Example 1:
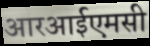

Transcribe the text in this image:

आरआईएमसी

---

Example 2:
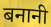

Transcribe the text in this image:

बनानी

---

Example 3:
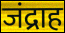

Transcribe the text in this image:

जंद्राह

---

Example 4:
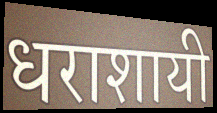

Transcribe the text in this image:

धराशायी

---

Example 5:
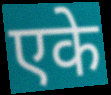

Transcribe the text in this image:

एके